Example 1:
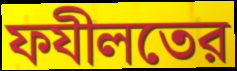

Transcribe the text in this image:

ফযীলতের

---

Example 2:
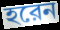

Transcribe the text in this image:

হরেন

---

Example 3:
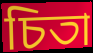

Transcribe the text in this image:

চিতা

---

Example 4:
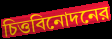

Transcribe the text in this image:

চিত্তবিনোদনের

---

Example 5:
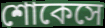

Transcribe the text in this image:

শোকেসে